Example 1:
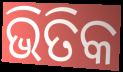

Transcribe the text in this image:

ଭିତିକ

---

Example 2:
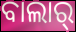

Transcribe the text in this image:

ବାଲାର୍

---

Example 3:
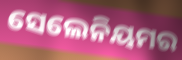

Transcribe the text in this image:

ସେଲେନିୟମର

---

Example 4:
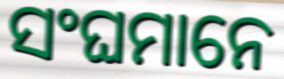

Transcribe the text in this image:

ସଂଘମାନେ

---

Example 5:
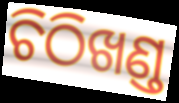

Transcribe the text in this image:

ଚିଠିଖଣ୍ଡ